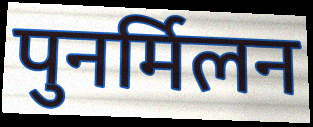
पुनर्मिलन